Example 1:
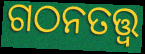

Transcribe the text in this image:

ଗଠନତତ୍ତ୍ୱ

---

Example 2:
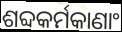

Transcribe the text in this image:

ଶବ୍ଦକର୍ମକାଣାଂ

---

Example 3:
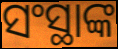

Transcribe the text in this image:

ସଂସ୍ଥାଙ୍କ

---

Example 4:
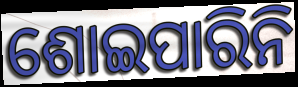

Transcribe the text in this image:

ଶୋଇପାରିନି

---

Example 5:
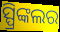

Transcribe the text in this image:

ସ୍ପ୍ରିଙ୍କଲର